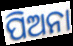
ପିଅନା